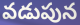
వడుపున